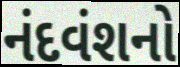
નંદવંશનો